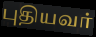
புதியவர்